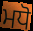
ਮਧੋ